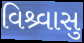
વિશ્ર્વાસુ